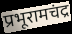
प्रभूरामचंद्र